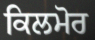
ਕਿਲਮੋਰ